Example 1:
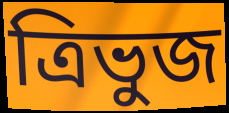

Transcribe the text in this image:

ত্ৰিভুজ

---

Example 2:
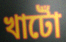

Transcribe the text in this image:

খাটোঁ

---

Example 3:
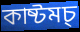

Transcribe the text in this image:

কাষ্টমচ্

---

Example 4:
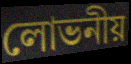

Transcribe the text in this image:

লোভনীয়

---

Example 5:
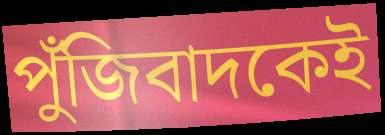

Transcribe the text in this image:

পুঁজিবাদকেই